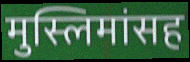
मुस्लिमांसह